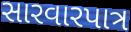
સારવારપાત્ર